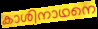
കാശിനാഥനെ